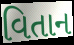
વિતાન